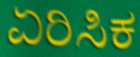
ಏರಿಸಿಕ